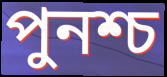
পুনশ্চ